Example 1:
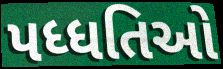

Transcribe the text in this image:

પધ્ધતિઓ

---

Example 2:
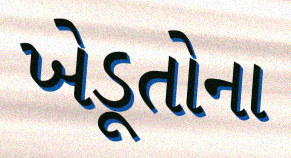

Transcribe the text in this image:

ખેડૂતોના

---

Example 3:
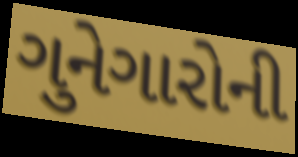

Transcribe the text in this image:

ગુનેગારોની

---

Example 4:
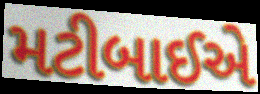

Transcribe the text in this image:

મટીબાઈએ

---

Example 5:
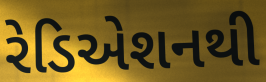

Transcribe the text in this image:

રેડિએશનથી